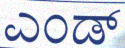
ಎಂಡ್